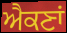
ਐਕਣਾਂ